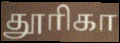
தூரிகா